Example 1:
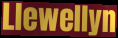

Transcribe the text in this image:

Llewellyn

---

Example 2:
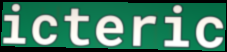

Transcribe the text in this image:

icteric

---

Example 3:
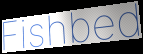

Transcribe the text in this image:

Fishbed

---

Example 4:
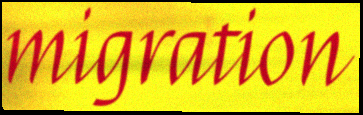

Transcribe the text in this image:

migration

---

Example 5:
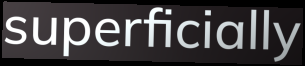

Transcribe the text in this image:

superficially